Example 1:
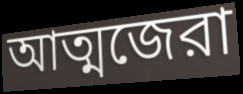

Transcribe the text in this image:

আত্মজেরা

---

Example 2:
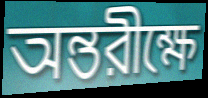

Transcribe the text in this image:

অন্তরীক্ষে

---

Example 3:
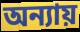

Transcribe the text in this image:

অন্যায়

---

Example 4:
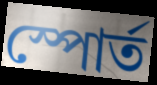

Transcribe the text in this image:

স্পোর্ত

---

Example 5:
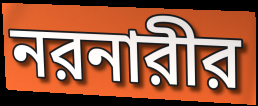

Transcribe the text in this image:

নরনারীর